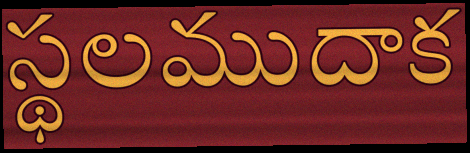
స్థలముదాక